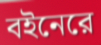
বইনেরে